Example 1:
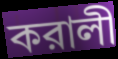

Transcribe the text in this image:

করালী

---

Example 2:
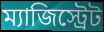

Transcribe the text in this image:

ম্যাজিস্ট্রেট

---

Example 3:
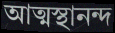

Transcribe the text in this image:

আত্মস্থানন্দ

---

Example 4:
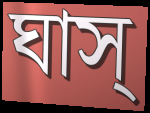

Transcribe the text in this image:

ঘাস্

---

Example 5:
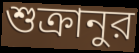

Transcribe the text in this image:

শুক্রানুর